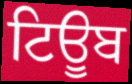
ਟਿਊੂਬ